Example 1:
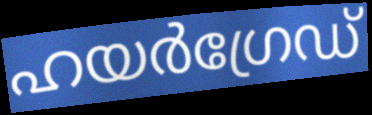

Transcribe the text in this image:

ഹയർഗ്രേഡ്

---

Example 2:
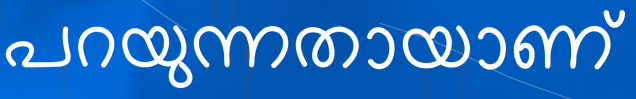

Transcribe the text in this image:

പറയുന്നതായാണ്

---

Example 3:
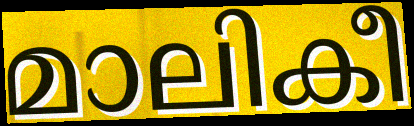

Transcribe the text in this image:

മാലികീ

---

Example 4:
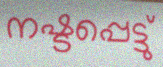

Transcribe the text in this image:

നഷ്ടപ്പെട്ടു്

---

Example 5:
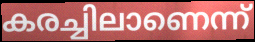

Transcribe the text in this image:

കരച്ചിലാണെന്ന്